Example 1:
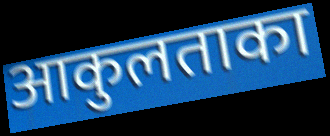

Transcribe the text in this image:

आकुलताका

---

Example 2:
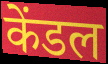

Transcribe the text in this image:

केंडल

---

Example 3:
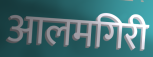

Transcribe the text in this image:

आलमगिरी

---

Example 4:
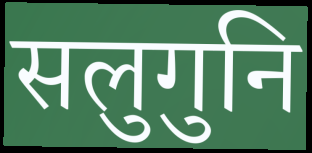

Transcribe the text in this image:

सलुगुनि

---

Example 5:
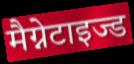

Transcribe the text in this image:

मैग्नेटाइज्ड